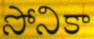
సోనికా